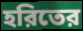
হরিতের